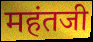
महंतजी